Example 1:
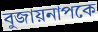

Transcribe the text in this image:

বুজায়নাপকে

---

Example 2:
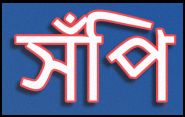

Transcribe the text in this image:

সঁপি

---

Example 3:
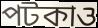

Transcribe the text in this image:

পটকাও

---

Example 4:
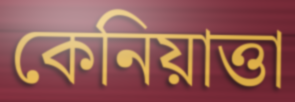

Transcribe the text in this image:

কেনিয়াত্তা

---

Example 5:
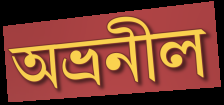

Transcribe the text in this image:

অভ্রনীল